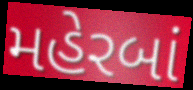
મહેરબાં